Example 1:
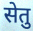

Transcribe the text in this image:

सेतु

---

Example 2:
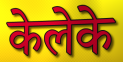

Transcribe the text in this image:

केलेके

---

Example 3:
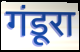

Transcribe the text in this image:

गंडूरा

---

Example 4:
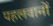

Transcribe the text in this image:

पहलवानों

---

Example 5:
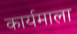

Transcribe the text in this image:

कार्यमाला